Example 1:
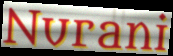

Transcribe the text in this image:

Nurani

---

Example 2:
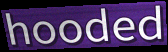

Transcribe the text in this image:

hooded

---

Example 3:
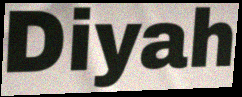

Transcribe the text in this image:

Diyah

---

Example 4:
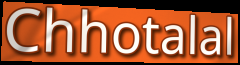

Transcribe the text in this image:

Chhotalal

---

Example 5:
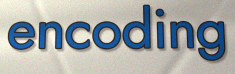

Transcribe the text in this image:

encoding